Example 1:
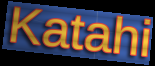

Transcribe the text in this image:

Katahi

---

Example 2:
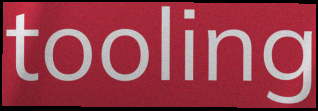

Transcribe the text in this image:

tooling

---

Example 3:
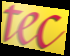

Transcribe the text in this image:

tec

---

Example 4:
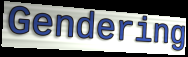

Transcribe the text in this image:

Gendering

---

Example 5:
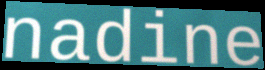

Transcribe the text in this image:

nadine